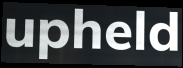
upheld